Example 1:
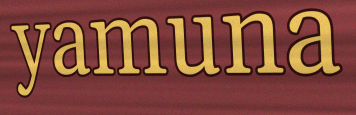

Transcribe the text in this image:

yamuna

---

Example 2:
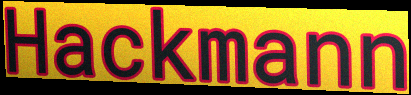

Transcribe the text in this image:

Hackmann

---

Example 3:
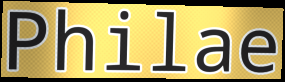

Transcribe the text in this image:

Philae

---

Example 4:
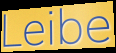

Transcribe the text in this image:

Leibe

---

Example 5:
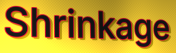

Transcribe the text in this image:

Shrinkage